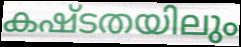
കഷ്ടതയിലും